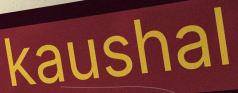
kaushal